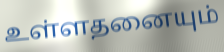
உள்ளதனையும்